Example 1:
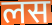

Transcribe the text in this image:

लस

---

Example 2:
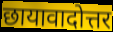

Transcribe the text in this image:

छायावादोत्तर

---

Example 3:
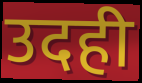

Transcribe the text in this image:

उदही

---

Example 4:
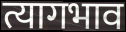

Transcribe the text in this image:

त्यागभाव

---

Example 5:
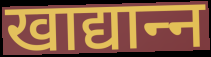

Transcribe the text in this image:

खाद्यान्‍न